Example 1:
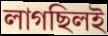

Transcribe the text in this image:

লাগছিলই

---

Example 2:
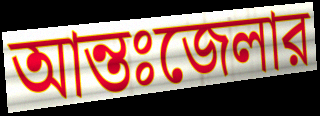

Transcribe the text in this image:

আন্তঃজেলার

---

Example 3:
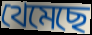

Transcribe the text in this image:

থেমেছে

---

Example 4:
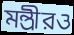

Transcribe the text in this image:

মন্ত্রীরও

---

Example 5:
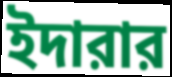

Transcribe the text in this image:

ইদারার